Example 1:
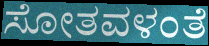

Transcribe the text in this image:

ಸೋತವಳಂತೆ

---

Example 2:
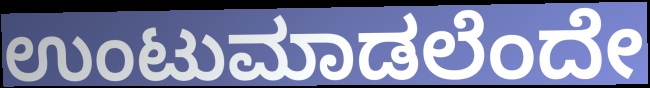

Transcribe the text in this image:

ಉಂಟುಮಾಡಲೆಂದೇ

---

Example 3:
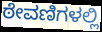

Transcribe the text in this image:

ಠೇವಣಿಗಳಲ್ಲಿ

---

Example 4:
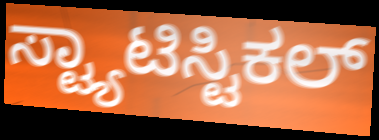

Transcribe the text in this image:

ಸ್ಟ್ಯಾಟಿಸ್ಟಿಕಲ್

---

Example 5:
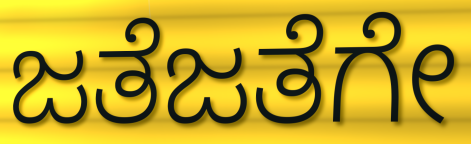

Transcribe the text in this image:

ಜತೆಜತೆಗೇ